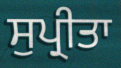
ਸੁਪ੍ਰੀਤਾ